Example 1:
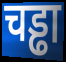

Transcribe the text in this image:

चड्ढा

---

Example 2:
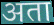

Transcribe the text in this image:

अता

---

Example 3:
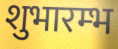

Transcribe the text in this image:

शुभारम्‍भ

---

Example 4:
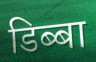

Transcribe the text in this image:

डिब्बा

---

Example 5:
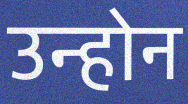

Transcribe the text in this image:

उन्होन